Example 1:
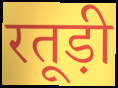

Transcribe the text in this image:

रतूड़ी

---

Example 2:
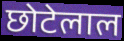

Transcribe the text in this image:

छोटेलाल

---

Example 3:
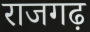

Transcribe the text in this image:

राजगढ़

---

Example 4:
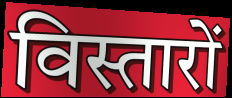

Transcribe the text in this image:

विस्तारों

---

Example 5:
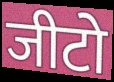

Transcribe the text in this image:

जीटो